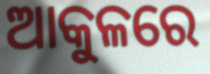
ଆକୁଳରେ